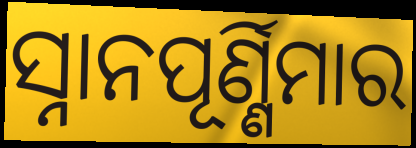
ସ୍ନାନପୂର୍ଣ୍ଣିମାର